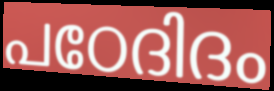
പഠേദിദം